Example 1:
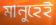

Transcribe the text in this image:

মানুহেই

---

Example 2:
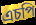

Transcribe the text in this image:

এচপি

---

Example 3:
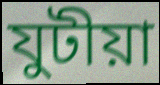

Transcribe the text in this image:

যুটীয়া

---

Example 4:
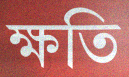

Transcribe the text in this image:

ক্ষতি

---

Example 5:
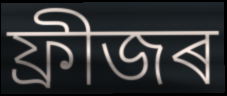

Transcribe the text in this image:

ফ্ৰীজৰ